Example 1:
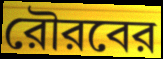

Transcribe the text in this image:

রৌরবের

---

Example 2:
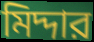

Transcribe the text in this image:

মিদ্দার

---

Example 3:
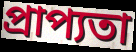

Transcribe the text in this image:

প্রাপ্যতা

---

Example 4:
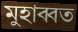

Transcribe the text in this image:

মুহাব্বত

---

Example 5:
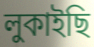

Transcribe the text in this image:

লুকাইছি